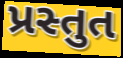
પ્રસ્તુત